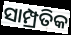
ସାମ୍ପ୍ରତିକ